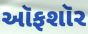
ઑફશૉર